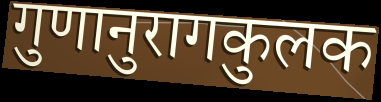
गुणानुरागकुलक